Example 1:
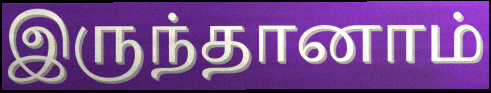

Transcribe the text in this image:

இருந்தானாம்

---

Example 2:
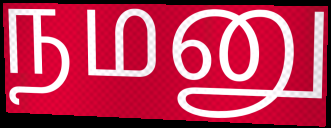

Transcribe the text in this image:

நமனு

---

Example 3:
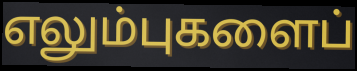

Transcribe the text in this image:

எலும்புகளைப்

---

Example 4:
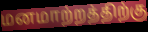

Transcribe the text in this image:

மனமாற்றத்திற்கு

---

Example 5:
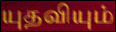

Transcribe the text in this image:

யுதவியும்